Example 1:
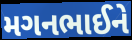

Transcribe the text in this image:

મગનભાઈને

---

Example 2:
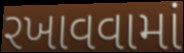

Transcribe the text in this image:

રખાવવામાં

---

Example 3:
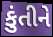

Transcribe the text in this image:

કુંતીને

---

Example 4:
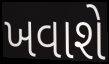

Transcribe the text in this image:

ખવાશે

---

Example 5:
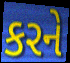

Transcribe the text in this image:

કરને